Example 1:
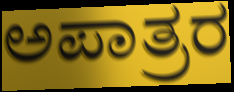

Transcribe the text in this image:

ಅಪಾತ್ರರ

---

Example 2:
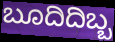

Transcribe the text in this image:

ಬೂದಿದಿಬ್ಬ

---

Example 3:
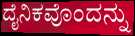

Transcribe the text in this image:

ದೈನಿಕವೊಂದನ್ನು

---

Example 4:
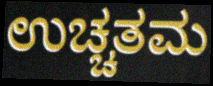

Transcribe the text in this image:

ಉಚ್ಚತಮ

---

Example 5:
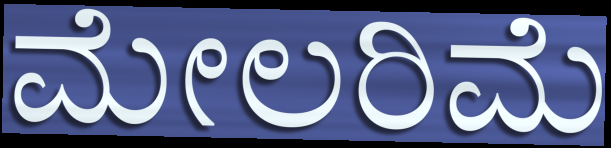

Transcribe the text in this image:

ಮೇಲರಿಮೆ